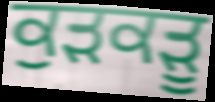
ਕੁੜਕੜੂ